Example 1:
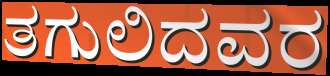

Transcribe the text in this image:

ತಗುಲಿದವರ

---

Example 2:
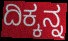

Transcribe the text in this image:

ದಿಕ್ಕನ್ನ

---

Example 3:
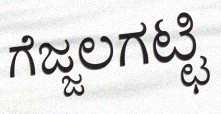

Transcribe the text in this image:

ಗೆಜ್ಜಲಗಟ್ಟಿ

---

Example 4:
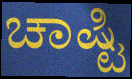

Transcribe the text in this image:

ಚಾಷ್ಟಿ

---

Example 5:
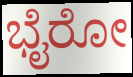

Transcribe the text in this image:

ಭೈರೋ